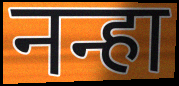
नन्हा